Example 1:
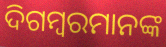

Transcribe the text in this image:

ଦିଗମ୍ବରମାନଙ୍କ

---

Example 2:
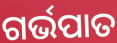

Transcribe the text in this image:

ଗର୍ଭପାତ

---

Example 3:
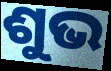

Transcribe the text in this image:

ଶୁଭ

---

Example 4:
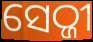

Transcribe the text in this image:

ସେଠ୍ଜୀ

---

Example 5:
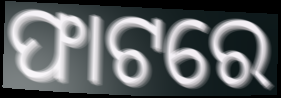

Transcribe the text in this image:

ଫାଟରେ